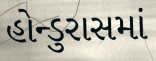
હોન્ડુરાસમાં